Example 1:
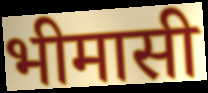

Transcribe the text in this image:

भीमासी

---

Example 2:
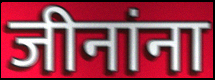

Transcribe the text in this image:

जीनांना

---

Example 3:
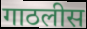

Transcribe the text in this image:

गाठलीस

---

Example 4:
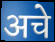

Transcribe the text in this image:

अचे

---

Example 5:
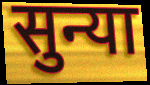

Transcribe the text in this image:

सुन्या